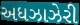
અધઝાઝેરી